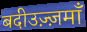
बदीउज़्ज़माँ